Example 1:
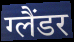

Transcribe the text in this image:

ग्लैंडर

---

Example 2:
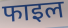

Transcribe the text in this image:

फाइल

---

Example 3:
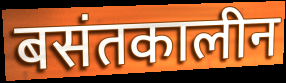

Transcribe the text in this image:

बसंतकालीन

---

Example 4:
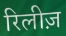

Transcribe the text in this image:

रिलीज़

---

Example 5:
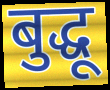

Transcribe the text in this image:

बुद्धू